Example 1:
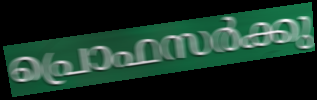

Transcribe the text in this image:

പ്രൊഫസർക്കു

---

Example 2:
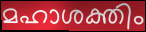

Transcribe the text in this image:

മഹാശക്തിം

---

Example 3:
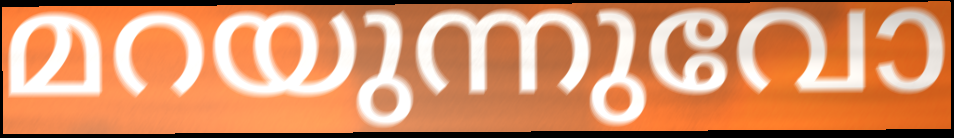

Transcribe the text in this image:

മറയുന്നുവോ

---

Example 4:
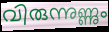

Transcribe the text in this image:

വിരുന്നുണ്ണും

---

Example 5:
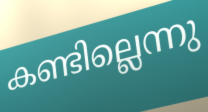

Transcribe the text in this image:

കണ്ടില്ലെന്നു